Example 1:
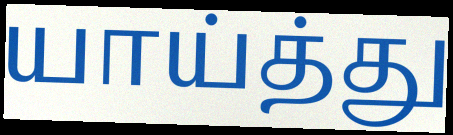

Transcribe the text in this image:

யாய்த்து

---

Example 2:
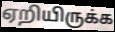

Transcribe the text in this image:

ஏறியிருக்க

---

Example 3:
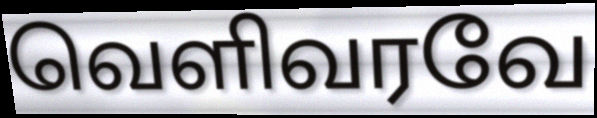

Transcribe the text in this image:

வெளிவரவே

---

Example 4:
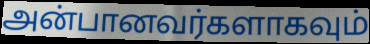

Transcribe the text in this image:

அன்பானவர்களாகவும்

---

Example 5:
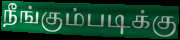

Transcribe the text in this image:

நீங்கும்படிக்கு